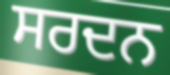
ਸਰਦਨ